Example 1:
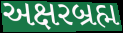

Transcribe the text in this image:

અક્ષરબ્રહ્મ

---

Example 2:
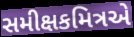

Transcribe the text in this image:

સમીક્ષકમિત્રએ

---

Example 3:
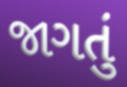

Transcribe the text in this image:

જાગતું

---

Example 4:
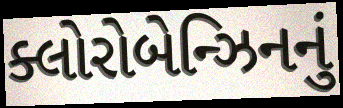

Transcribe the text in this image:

ક્લોરોબેન્ઝિનનું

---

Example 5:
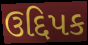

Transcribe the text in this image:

ઉદ્દિપક